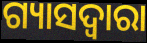
ଗ୍ୟାସଦ୍ଵାରା